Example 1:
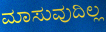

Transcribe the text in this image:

ಮಾಸುವುದಿಲ್ಲ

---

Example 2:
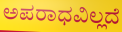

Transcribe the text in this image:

ಅಪರಾಧವಿಲ್ಲದೆ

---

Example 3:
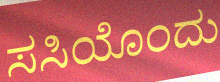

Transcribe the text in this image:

ಸಸಿಯೊಂದು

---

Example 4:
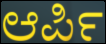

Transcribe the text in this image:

ಆರ್ಪಿ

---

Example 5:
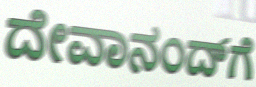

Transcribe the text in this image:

ದೇವಾನಂದ್‌ಗೆ